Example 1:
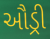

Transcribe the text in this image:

ઔડ્રી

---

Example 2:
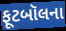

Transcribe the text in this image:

ફૂટબૉલના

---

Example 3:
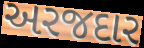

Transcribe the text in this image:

અરજદાર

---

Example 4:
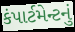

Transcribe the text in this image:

કંપાર્ટમેન્ટનું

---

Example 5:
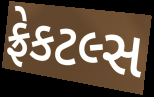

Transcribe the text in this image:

ફ્રેકટલ્સ